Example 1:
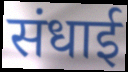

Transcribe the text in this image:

संधाई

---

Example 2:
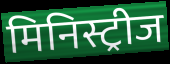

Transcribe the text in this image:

मिनिस्ट्रीज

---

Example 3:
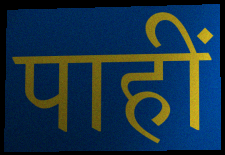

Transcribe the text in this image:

पाहीं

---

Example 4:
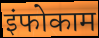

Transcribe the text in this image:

इंफोकाम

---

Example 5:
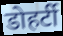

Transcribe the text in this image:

डोहर्टी